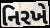
નિરખે